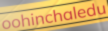
oohinchaledu